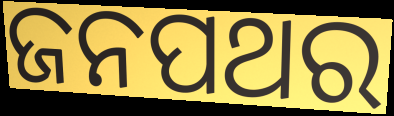
ଜନପଥର